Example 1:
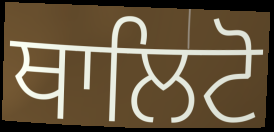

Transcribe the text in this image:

ਥਾਲਿਟੋ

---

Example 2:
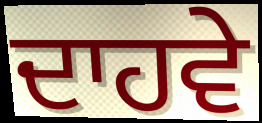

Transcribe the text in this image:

ਦਾਹਵੇ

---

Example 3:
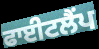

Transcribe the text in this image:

ਫਾਈਟਲੈਂਪ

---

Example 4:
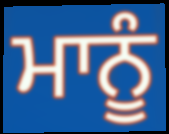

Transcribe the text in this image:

ਮਾਨੂੰ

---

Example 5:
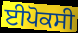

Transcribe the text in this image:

ਈਪੋਕਸੀ